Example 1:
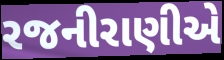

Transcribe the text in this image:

રજનીરાણીએ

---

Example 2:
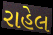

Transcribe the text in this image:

રાહેલ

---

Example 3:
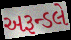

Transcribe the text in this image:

અરૂન્ડલે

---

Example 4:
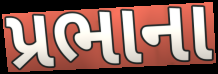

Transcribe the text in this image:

પ્રભાના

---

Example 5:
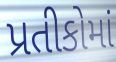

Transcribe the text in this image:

પ્રતીકોમાં